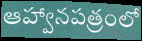
ఆహ్వానపత్రంలో